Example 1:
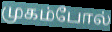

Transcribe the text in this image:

முகம்போல்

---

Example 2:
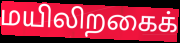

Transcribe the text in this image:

மயிலிறகைக்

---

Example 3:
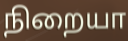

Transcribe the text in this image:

நிறையா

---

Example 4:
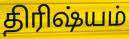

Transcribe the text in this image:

திரிஷ்யம்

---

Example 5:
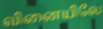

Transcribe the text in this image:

வினையிலே